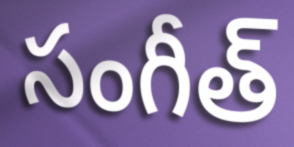
సంగీత్